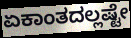
ಏಕಾಂತದಲ್ಲಷ್ಟೇ